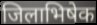
जिलाभिषेक